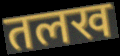
तलख